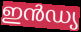
ഇൻഡ്യ